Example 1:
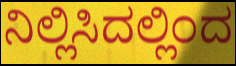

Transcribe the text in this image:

ನಿಲ್ಲಿಸಿದಲ್ಲಿಂದ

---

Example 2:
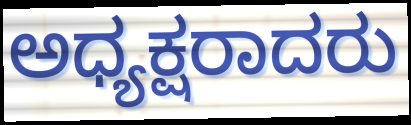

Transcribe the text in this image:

ಅಧ್ಯಕ್ಷರಾದರು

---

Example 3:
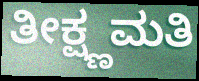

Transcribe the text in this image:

ತೀಕ್ಷ್ಣಮತಿ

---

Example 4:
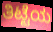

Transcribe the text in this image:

ತಿಟ್ಟೆಯ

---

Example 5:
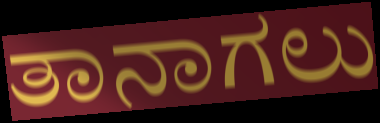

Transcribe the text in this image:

ತಾನಾಗಲು